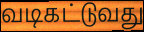
வடிகட்டுவது